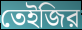
তেইজির